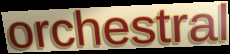
orchestral